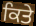
ਕਿਤੇ